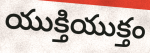
యుక్తియుక్తం